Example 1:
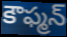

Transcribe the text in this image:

కౌఫ్మన్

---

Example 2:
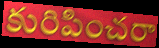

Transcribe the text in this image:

కురిపించరా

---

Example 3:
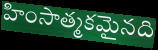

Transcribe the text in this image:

హింసాత్మకమైనది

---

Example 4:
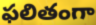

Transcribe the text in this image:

ఫలితంగా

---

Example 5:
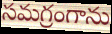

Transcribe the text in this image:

సమగ్రంగాను